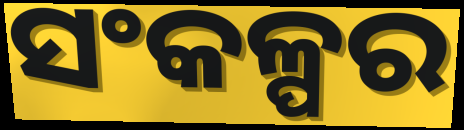
ସଂକଳ୍ପର